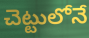
చెట్టులోనే